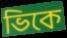
ভিকে